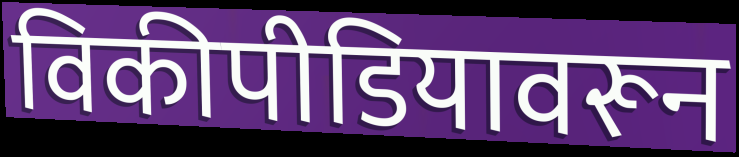
विकीपीडियावरून